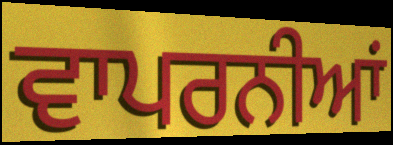
ਵਾਪਰਨੀਆਂ